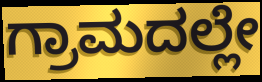
ಗ್ರಾಮದಲ್ಲೇ